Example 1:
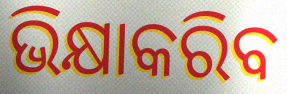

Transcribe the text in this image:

ଭିକ୍ଷାକରିବ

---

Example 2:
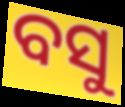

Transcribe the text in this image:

ବସୁ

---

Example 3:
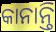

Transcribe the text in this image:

କାନାନ୍ତି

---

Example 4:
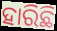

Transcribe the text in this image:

ହାରିଛି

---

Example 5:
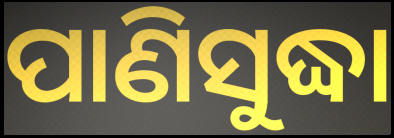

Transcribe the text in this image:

ପାଣିସୁଦ୍ଧା